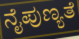
ನೈಪುಣ್ಯತೆ